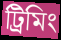
ট্রিমিং